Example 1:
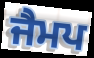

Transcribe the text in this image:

ਜੈਮਪ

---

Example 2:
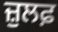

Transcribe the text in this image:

ਜ਼ੁਲਫ਼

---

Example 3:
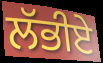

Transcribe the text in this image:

ਲੱਭੀਏ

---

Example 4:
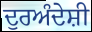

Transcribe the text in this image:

ਦੁਰਅੰਦੇਸ਼ੀ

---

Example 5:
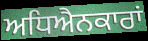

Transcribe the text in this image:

ਅਧਿਐਨਕਾਰਾਂ